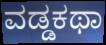
ವಡ್ಡಕಥಾ